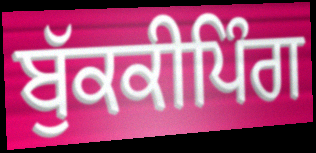
ਬੁੱਕਕੀਪਿੰਗ